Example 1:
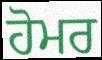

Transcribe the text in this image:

ਹੋਮਰ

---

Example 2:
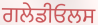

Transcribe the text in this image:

ਗਲੇਡੀਓਲਸ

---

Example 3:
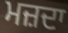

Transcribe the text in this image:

ਮਜ਼ਦਾ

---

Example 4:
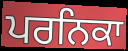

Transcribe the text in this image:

ਪਰਨਿਕਾ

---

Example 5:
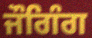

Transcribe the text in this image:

ਜੌਗਿੰਗ